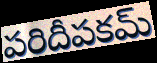
పరిదీపకమ్